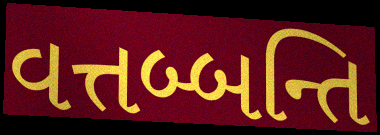
વત્તબ્બન્તિ